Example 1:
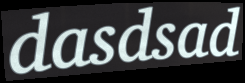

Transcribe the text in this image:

dasdsad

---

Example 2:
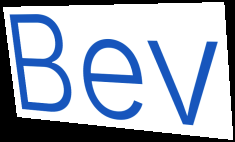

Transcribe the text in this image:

Bev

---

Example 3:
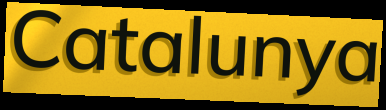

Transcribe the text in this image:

Catalunya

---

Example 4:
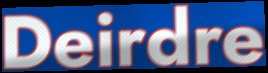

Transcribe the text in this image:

Deirdre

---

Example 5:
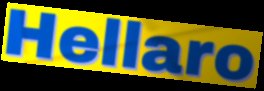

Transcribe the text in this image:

Hellaro